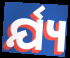
ର୍ଯ୍ୟ